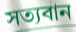
সত্যবান